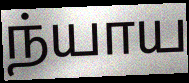
ந்யாய